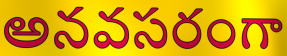
అనవసరంగా